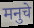
मनुचे